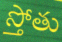
స్తోతు